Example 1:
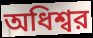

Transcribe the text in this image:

অধিশ্বর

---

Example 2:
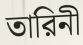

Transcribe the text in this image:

তারিনী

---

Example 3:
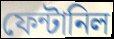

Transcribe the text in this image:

ফেন্টানিল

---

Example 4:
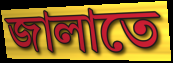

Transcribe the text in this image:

জালাতে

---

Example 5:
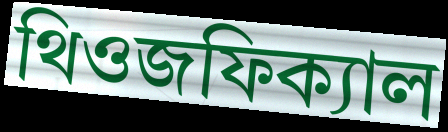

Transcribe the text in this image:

থিওজফিক্যাল